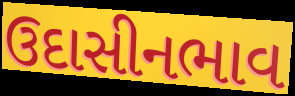
ઉદાસીનભાવ